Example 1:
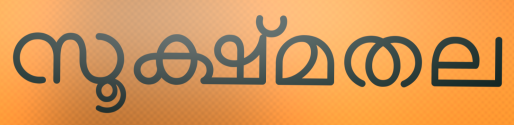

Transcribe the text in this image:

സൂക്ഷ്മതല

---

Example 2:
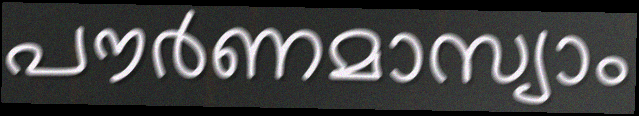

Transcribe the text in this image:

പൗർണമാസ്യാം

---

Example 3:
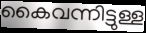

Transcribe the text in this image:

കൈവന്നിട്ടുള്ള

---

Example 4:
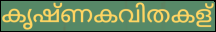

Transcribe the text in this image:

കൃഷ്ണകവിതകള്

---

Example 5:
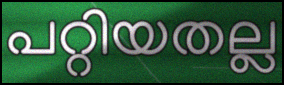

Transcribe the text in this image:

പറ്റിയതല്ല